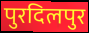
पुरदिलपुर